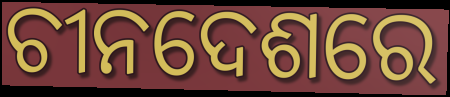
ଚୀନଦେଶରେ